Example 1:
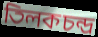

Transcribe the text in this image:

তিলকচন্দ্র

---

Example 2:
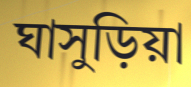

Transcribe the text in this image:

ঘাসুড়িয়া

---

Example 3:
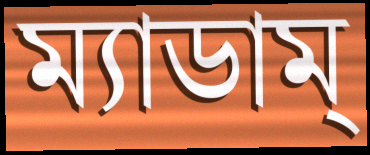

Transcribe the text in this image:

ম্যাডাম্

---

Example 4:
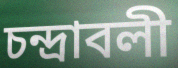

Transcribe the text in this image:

চন্দ্রাবলী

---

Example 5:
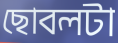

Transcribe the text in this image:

ছোবলটা